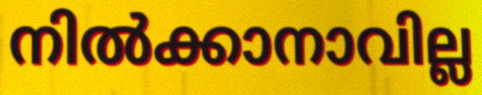
നിൽക്കാനാവില്ല